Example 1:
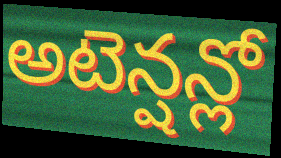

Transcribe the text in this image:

అటెన్షన్లో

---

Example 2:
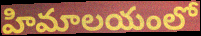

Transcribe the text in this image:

హిమాలయంలో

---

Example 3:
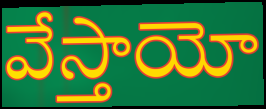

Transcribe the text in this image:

వేస్తాయో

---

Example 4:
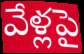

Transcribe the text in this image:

వేళ్లపై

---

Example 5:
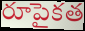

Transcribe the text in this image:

రూపైకత